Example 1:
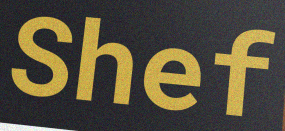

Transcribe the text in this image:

Shef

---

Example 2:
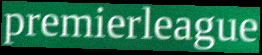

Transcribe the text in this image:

premierleague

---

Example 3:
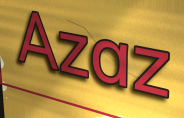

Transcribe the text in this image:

Azaz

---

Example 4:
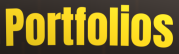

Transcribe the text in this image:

Portfolios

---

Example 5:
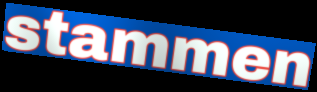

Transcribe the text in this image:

stammen